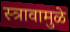
स्त्रावामुळे